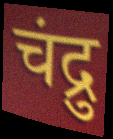
चंद्रु